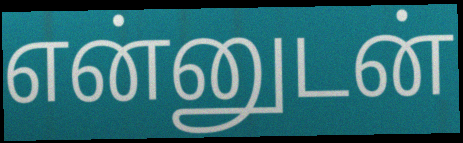
என்னுடன்